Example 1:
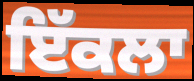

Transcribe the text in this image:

ਇੱਕਲਾ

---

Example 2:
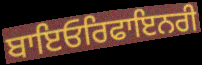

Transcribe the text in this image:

ਬਾਇਓਰਿਫਾਇਨਰੀ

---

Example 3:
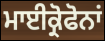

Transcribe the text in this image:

ਮਾਈਕ੍ਰੋਫੋਨਾਂ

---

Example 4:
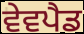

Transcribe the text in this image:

ਵੇਵਪੈਡ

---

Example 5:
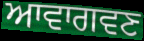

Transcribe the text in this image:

ਆਵਾਗਵਣ